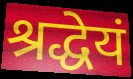
श्रद्धेयं